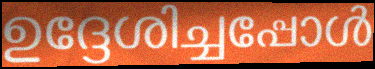
ഉദ്ദേശിച്ചപ്പോൾ